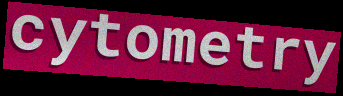
cytometry